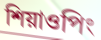
শিয়াওপিং